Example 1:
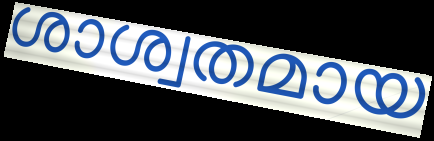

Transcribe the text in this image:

ശാശ്വതമായ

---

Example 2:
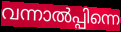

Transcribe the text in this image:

വന്നാൽപ്പിന്നെ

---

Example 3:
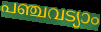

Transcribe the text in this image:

പഞ്ചവട്യാം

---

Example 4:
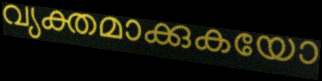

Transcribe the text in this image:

വ്യക്തമാക്കുകയോ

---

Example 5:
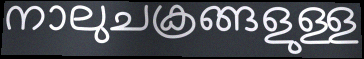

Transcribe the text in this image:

നാലുചക്രങ്ങളുള്ള